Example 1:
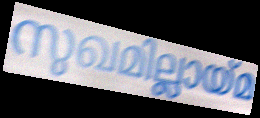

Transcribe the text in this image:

സുഖമില്ലായ്മ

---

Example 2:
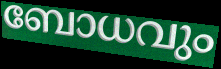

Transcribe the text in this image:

ബോധവും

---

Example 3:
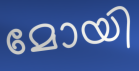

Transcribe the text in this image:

മോയി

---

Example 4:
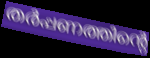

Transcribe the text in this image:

തർപ്പണത്തിന്റെ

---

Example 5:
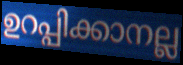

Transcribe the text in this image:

ഉറപ്പിക്കാനല്ല